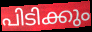
പിടിക്കും